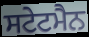
ਸਟੇਟਮੈਨ